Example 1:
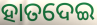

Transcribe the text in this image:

ହାତଦେଇ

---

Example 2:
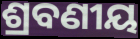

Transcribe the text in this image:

ଶ୍ରବଣୀୟ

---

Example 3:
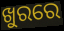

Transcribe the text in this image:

ଖୁରରେ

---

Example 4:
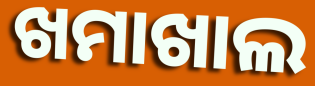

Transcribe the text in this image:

ଖମାଖାଲ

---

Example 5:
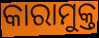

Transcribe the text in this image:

କାରାମୁକ୍ତ